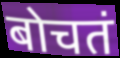
बोचतं